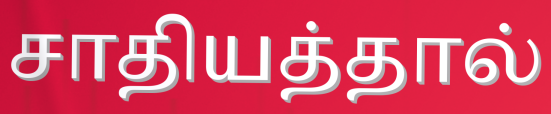
சாதியத்தால்